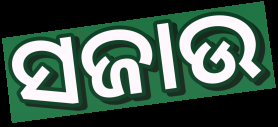
ସଜାଉ